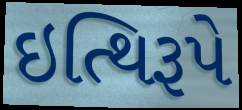
ઇત્થિરૂપે